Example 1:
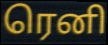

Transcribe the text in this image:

ரெனி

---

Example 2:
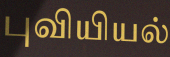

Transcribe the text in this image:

புவியியல்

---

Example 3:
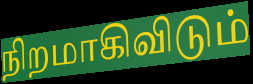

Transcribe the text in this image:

நிறமாகிவிடும்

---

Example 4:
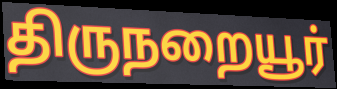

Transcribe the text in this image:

திருநறையூர்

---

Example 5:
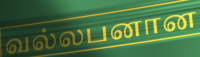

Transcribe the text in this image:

வல்லபனான